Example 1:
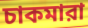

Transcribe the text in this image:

চাকমারা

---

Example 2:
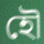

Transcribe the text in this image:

হৌ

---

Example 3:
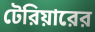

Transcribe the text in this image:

টেরিয়ারের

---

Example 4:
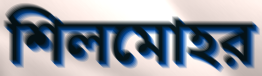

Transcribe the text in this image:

শিলমোহর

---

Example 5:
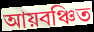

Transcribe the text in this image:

আয়বঞ্চিত